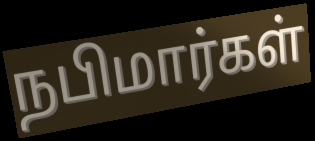
நபிமார்கள்